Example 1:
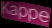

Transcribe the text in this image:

Kappe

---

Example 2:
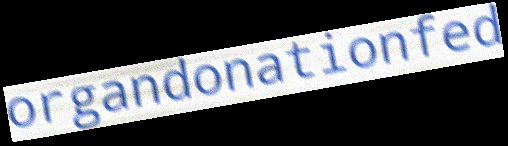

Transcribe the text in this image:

organdonationfed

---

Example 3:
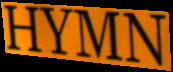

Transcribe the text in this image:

HYMN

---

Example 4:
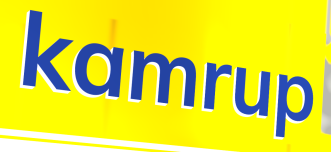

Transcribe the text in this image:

kamrup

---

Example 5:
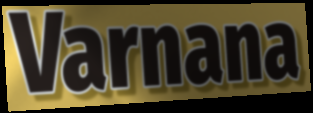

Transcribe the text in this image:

Varnana